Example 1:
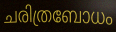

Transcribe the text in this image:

ചരിത്രബോധം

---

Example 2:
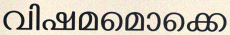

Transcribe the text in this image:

വിഷമമൊക്കെ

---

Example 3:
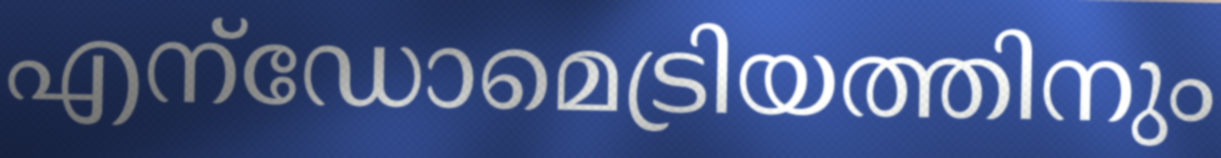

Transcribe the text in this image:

എന്ഡോമെട്രിയത്തിനും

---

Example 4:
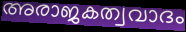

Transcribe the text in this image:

അരാജകത്വവാദം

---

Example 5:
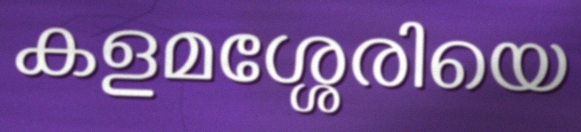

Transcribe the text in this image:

കളമശ്ശേരിയെ